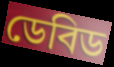
ডেবিড